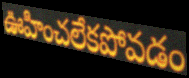
ఊహించలేకపోవడం